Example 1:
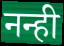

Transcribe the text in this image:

नन्ही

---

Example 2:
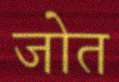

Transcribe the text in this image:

जोत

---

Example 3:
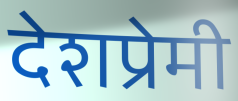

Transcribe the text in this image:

देशप्रेमी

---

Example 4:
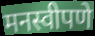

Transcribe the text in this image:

मनस्वीपणे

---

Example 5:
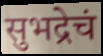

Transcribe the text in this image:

सुभद्रेचं